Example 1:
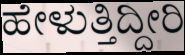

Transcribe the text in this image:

ಹೇಳುತ್ತಿದ್ದೀರಿ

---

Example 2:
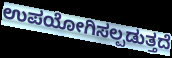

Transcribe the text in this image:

ಉಪಯೋಗಿಸಲ್ಪಡುತ್ತದೆ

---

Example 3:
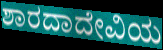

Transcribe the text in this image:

ಶಾರದಾದೇವಿಯ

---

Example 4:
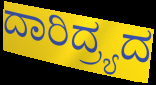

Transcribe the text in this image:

ದಾರಿದ್ರ್ಯದ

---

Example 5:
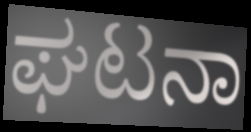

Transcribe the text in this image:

ಘಟನಾ